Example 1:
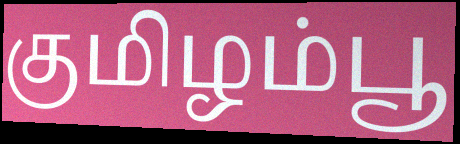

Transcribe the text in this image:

குமிழம்பூ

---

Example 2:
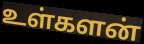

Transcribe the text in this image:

உள்களன்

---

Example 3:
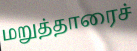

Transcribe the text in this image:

மறுத்தாரைச்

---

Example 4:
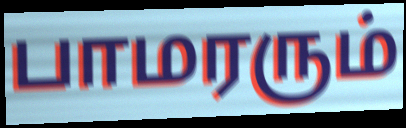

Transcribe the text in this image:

பாமரரும்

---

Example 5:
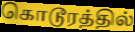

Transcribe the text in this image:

கொடூரத்தில்